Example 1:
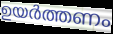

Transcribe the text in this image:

ഉയർത്തണം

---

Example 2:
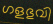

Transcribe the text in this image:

ഗളഭുവി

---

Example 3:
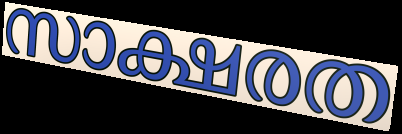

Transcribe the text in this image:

സാക്ഷരത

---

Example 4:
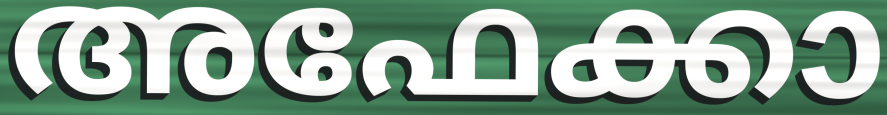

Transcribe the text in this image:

അഫേക്കാ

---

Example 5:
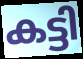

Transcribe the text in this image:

കട്ടി